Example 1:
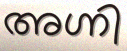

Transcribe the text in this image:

അഗ്നി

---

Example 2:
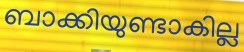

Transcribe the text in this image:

ബാക്കിയുണ്ടാകില്ല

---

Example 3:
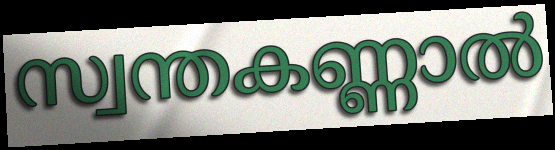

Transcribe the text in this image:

സ്വന്തകണ്ണാൽ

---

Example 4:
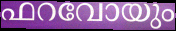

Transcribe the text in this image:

ഫറവോയും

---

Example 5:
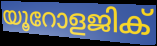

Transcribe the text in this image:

യൂറോളജിക്